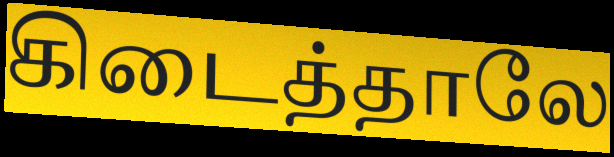
கிடைத்தாலே